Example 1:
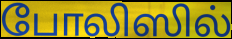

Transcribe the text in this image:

போலிஸில்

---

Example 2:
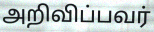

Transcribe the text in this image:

அறிவிப்பவர்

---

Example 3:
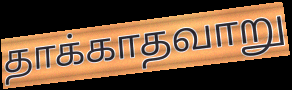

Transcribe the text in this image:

தாக்காதவாறு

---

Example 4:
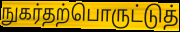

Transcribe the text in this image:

நுகர்தற்பொருட்டுத்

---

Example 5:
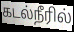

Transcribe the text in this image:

கடல்நீரில்